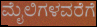
ಮೈಲಿಗಳವರೆಗೆ